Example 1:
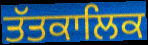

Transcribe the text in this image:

ਤੱਤਕਾਲਿਕ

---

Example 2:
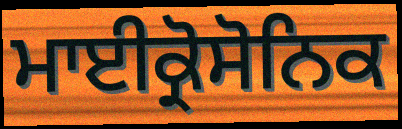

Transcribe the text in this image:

ਮਾਈਕ੍ਰੋਸੋਨਿਕ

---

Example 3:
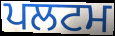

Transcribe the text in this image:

ਪਲਟਮ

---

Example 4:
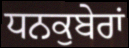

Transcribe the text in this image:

ਧਨਕੁਬੇਰਾਂ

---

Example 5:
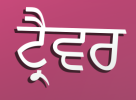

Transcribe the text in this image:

ਟ੍ਰੈਵਰ